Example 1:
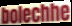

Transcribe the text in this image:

bolechhe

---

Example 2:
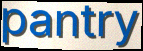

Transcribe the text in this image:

pantry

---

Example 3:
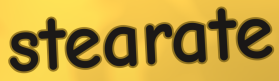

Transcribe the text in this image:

stearate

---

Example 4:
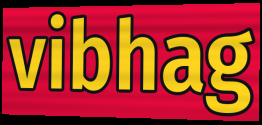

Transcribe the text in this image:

vibhag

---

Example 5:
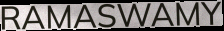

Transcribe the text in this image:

RAMASWAMY